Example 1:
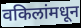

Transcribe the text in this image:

वकिलांमधून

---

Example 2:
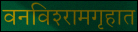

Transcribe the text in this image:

वनविश्रामगृहात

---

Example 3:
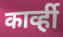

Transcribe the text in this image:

कार्व्ही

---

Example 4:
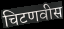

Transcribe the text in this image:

चिटणवीस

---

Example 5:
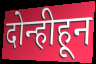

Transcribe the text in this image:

दोन्हीहून